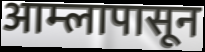
आम्लापासून